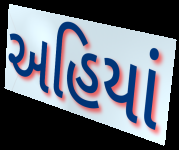
અહિયાં